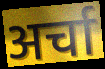
अर्चा